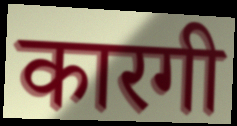
कारगी